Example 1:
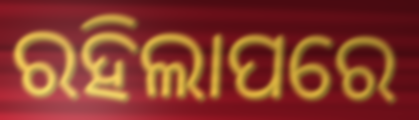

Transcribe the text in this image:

ରହିଲାପରେ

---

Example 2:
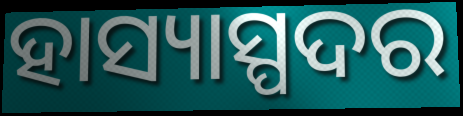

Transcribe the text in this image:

ହାସ୍ୟାସ୍ପଦର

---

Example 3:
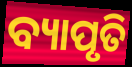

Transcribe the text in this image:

ବ୍ୟାପୃତି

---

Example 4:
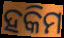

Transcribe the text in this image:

ହକିମ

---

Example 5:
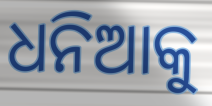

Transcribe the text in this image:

ଧନିଆକୁ